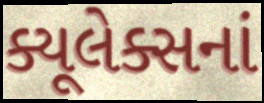
ક્યૂલેક્સનાં